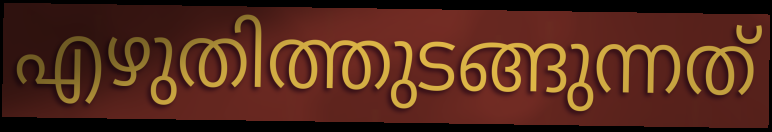
എഴുതിത്തുടങ്ങുന്നത്